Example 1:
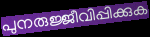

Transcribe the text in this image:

പുനരുജ്ജീവിപ്പിക്കുക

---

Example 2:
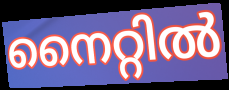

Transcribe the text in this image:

നൈറ്റിൽ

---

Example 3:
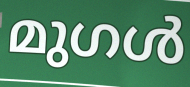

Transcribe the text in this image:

മുഗൾ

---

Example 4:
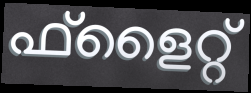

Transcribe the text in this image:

ഫ്ളൈറ്റ്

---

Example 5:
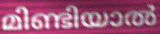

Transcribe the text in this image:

മിണ്ടിയാൽ